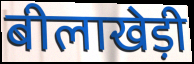
बीलाखेड़ी